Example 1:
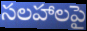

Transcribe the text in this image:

సలహాలపై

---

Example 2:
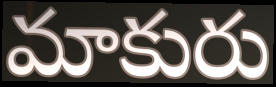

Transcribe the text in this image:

మాకురు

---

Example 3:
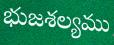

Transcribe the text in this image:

భుజశల్యము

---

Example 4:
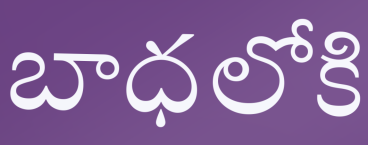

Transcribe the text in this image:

బాధలోకి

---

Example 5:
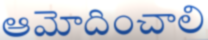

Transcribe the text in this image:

ఆమోదించాలి